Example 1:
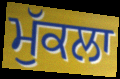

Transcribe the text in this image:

ਮੁੱਕਲਾ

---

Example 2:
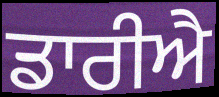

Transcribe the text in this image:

ਡਾਰੀਐ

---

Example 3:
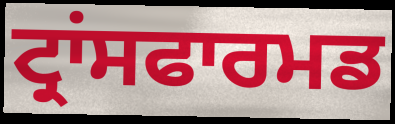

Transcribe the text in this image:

ਟ੍ਰਾਂਸਫਾਰਮਡ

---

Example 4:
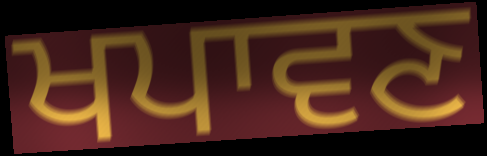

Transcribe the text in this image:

ਖਪਾਵਣ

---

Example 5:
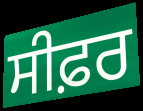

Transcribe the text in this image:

ਸੀਫ਼ਰ